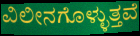
ವಿಲೀನಗೊಳ್ಳುತ್ತವೆ